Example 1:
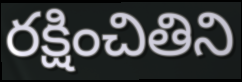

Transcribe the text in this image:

రక్షించితిని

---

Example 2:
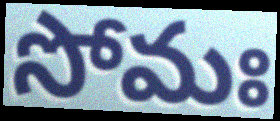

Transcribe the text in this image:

సోమః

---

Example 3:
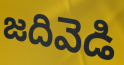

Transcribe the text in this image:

జదివెడి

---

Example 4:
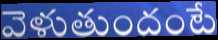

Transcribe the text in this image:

వెళుతుందంటే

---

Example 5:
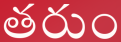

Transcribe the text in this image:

తరుం